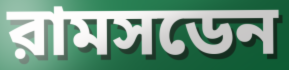
রামসডেন